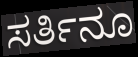
ಸರ್ತಿನೂ